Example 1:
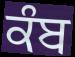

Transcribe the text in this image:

ਕੰਬ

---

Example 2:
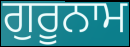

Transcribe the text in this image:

ਗੁਰੂਨਾਮ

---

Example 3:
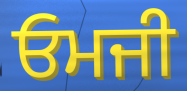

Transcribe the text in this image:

ਓਮਜੀ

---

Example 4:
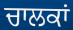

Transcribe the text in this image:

ਚਾਲਕਾਂ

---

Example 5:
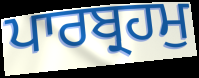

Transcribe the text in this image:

ਪਾਰਬ੍ਰਹਮੁ